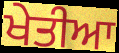
ਖੇਤੀਆ